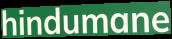
hindumane